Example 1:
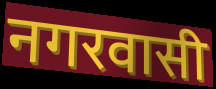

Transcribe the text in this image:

नगरवासी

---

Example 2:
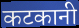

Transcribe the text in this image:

कटकानी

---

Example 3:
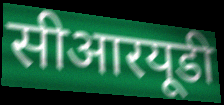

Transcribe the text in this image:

सीआरयूडी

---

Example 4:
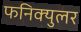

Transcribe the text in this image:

फनिक्युलर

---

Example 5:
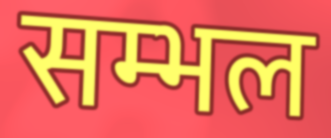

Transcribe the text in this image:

सम्भल